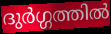
ദുർഗ്ഗത്തിൽ